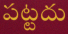
పట్టదు